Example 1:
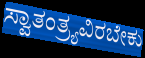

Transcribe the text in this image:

ಸ್ವಾತಂತ್ರ್ಯವಿರಬೇಕು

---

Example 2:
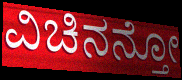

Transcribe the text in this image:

ವಿಚಿನನ್ತೋ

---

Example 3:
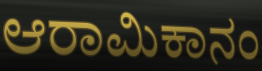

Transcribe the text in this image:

ಆರಾಮಿಕಾನಂ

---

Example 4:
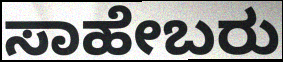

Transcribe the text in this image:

ಸಾಹೇಬರು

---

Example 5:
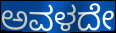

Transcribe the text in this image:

ಅವಳದೇ